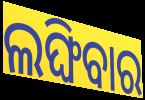
ଲଙ୍ଘିବାର